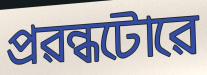
প্ৰৱন্ধটোৱে